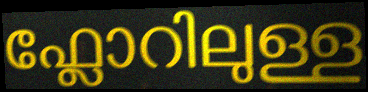
ഫ്ലോറിലുള്ള